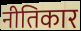
नीतिकार